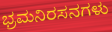
ಭ್ರಮನಿರಸನಗಳು